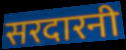
सरदारनी